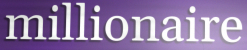
millionaire